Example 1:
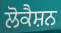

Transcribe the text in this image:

ਲੋਕੈਸ਼ਨ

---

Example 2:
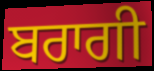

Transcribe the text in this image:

ਬਰਾਗੀ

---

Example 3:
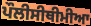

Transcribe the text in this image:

ਪੌਲੀਸੀਥੀਮੀਆ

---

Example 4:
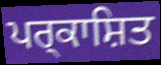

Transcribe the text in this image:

ਪਰ੍ਕਾਸ਼ਿਤ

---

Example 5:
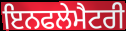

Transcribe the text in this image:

ਇਨਫਲੇਮੈਟਰੀ